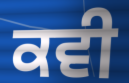
ਕਵੀ